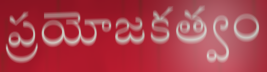
ప్రయోజకత్వం